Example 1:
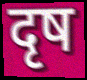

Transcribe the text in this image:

दृष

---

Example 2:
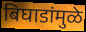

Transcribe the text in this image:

बिघाडांमुळे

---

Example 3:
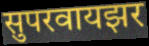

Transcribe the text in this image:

सुपरवायझर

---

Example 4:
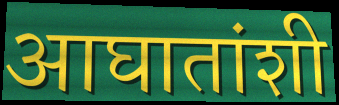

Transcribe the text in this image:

आघातांशी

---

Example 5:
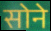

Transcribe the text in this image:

सोने